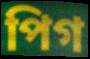
পিগ